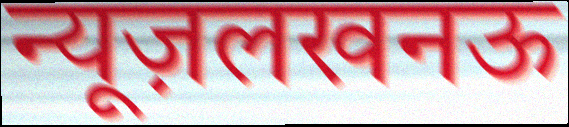
न्यूज़लखनऊ